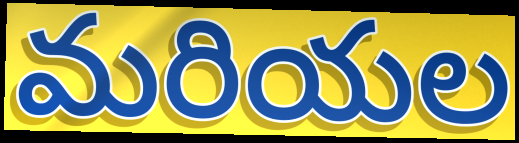
మరియల